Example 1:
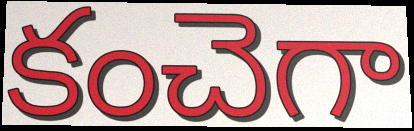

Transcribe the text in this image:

కంచెగా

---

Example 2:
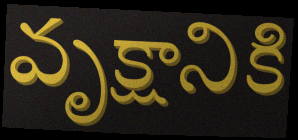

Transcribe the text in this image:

వృక్షానికి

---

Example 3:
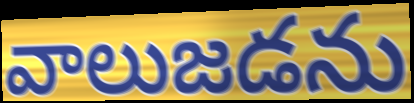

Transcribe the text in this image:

వాలుజడను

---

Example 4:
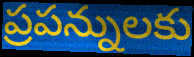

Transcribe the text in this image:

ప్రపన్నులకు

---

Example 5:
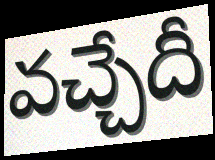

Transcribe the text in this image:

వచ్చేదీ